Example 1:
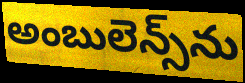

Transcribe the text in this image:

అంబులెన్స్‌ను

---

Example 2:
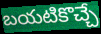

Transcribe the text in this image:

బయటికొచ్చే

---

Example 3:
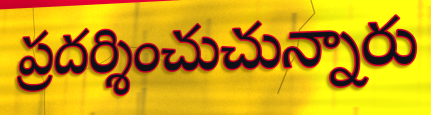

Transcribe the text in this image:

ప్రదర్శించుచున్నారు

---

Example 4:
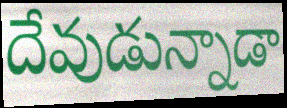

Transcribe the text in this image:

దేవుడున్నాడా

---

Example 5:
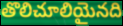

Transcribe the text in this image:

తొలిచూలియైనది